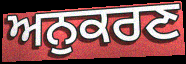
ਅਨੁਕਰਣ